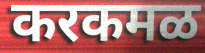
करकमळ